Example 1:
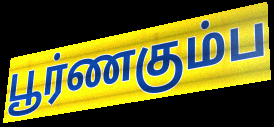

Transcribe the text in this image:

பூர்ணகும்ப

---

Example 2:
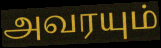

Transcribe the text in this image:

அவரயும்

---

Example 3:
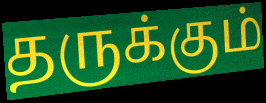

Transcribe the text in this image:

தருக்கும்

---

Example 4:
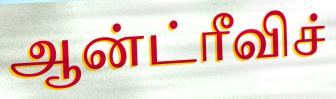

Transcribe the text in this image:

ஆன்ட்ரீவிச்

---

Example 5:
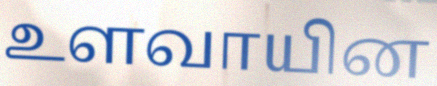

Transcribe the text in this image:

உளவாயின